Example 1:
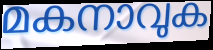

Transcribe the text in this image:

മകനാവുക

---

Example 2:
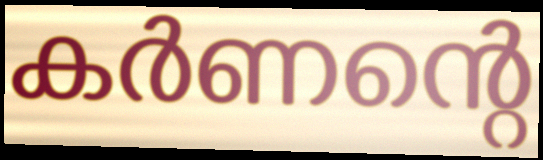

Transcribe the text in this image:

കർണന്റെ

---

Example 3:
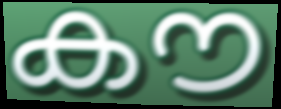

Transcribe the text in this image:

കൗ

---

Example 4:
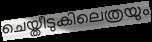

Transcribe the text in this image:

ചെയ്തീടുകിലെത്രയും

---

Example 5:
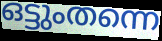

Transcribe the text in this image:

ഒട്ടുംതന്നെ